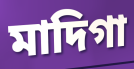
মাদিগা